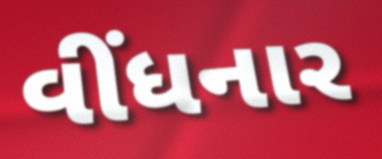
વીંધનાર